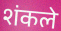
शंकले